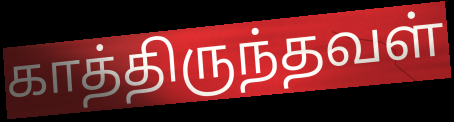
காத்திருந்தவள்